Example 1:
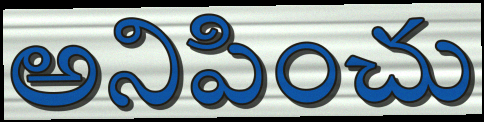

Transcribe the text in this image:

అనిపించు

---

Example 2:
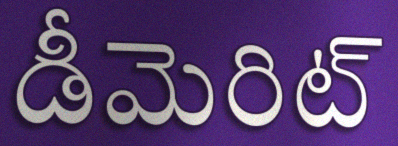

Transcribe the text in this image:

డీమెరిట్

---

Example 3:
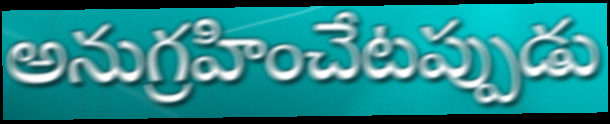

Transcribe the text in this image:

అనుగ్రహించేటప్పుడు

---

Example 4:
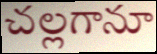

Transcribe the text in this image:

చల్లగానూ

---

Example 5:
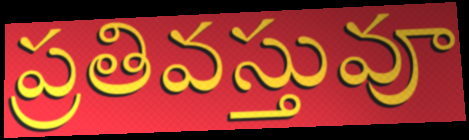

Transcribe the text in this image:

ప్రతివస్తువూ